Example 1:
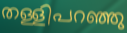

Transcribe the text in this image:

തള്ളിപറഞ്ഞു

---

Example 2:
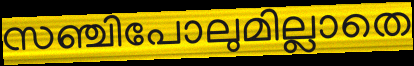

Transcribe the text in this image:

സഞ്ചിപോലുമില്ലാതെ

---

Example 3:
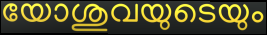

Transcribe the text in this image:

യോശുവയുടെയും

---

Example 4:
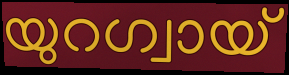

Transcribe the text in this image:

യുറഗ്വായ്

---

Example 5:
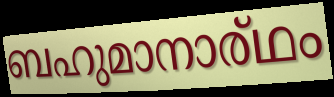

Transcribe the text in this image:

ബഹുമാനാര്ഥം